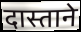
दास्ताने